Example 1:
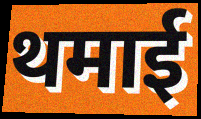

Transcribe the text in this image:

थमाई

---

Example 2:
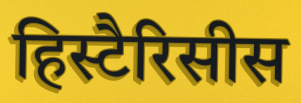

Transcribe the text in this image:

हिस्टैरिसीस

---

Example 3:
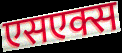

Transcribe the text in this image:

एसएक्स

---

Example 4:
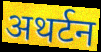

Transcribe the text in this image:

अथर्टन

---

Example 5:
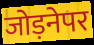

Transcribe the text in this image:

जोड़नेपर